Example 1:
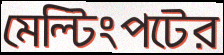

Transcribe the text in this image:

মেল্টিংপটের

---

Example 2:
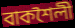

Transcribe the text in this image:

বাকশৈলী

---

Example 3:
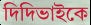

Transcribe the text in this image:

দিদিভাইকে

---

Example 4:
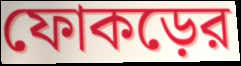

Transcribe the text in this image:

ফোকড়ের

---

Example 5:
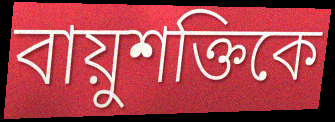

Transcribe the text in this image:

বায়ুশক্তিকে